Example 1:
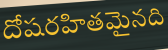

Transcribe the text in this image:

దోషరహితమైనది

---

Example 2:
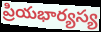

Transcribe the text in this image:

ప్రియభార్యస్య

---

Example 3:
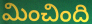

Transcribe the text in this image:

మించింది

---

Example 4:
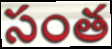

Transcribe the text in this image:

సంత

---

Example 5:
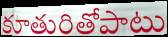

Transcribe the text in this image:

కూతురితోపాటు